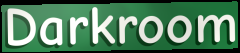
Darkroom